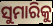
ସୁମାରିକୁ